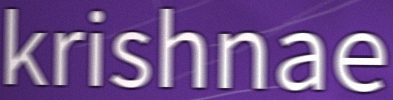
krishnae